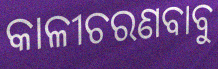
କାଳୀଚରଣବାବୁ